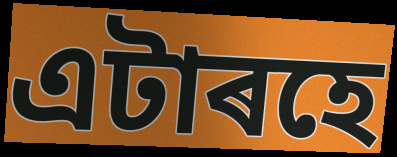
এটাৰহে